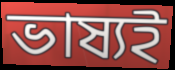
ভাষ্যই